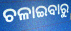
ଚଳାଇବାରୁ